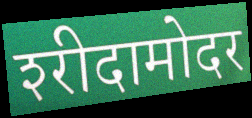
श्रीदामोदर